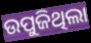
ଉପୁଜିଥିଲା